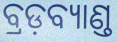
ବ୍ରଡ଼ବ୍ୟାଣ୍ଡ